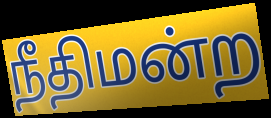
நீதிமன்ற